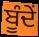
ਬੂੰਦੇਂ